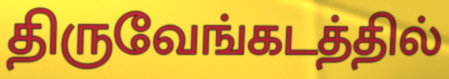
திருவேங்கடத்தில்